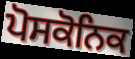
ਪੋਸਕੋਨਿਕ